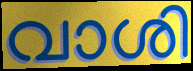
വാശി